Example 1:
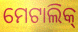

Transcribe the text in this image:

ମେଟାଲିକ୍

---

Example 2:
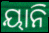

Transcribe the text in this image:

ୟାନି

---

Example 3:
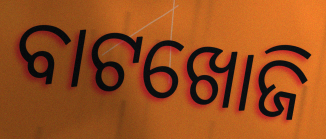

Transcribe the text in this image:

ବାଟଖୋଜି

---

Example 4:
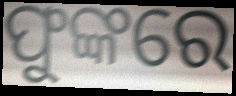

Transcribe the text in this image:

ଫୁଙ୍କରେ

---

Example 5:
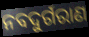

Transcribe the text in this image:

ନବଦୁର୍ଗରାଣ